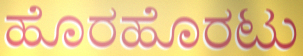
ಹೊರಹೊರಟು